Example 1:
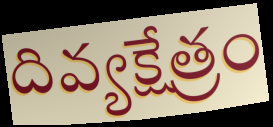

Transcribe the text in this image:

దివ్యక్షేత్రం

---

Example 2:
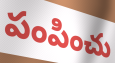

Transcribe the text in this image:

పంపించు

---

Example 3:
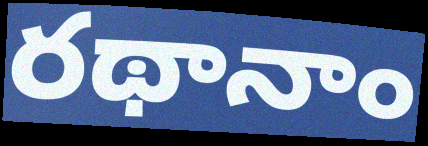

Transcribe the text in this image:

రథానాం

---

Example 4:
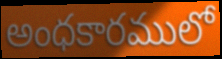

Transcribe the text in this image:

అంధకారములో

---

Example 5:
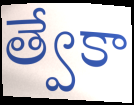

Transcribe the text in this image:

త్వేకా